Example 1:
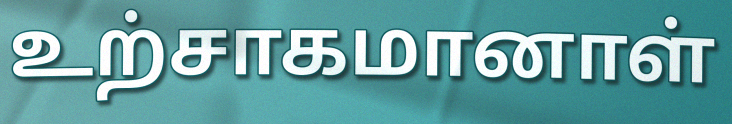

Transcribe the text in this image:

உற்சாகமானாள்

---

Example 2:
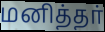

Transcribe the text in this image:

மனித்தர்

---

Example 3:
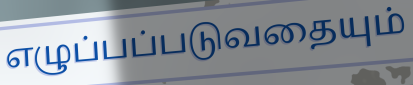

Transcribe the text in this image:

எழுப்பப்படுவதையும்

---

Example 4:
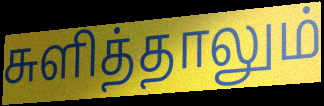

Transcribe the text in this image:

சுளித்தாலும்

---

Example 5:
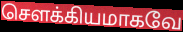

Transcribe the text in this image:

சௌக்கியமாகவே